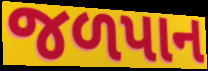
જળપાન